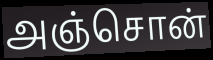
அஞ்சொன்